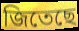
জিতেছে